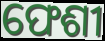
ଫେଶୀ